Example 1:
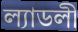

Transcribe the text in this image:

ল্যাডলী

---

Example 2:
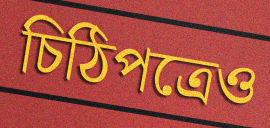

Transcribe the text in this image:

চিঠিপত্রেও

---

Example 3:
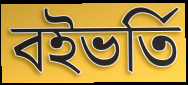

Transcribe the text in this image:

বইভর্তি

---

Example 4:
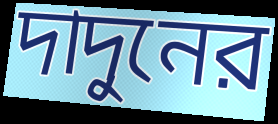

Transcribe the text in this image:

দাদুনের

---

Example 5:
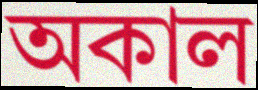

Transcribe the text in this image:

অকাল